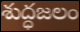
శుద్ధజలం